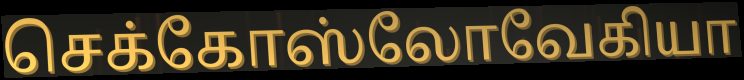
செக்கோஸ்லோவேகியா